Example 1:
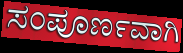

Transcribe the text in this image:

ಸಂಪೂರ್ಣವಾಗಿ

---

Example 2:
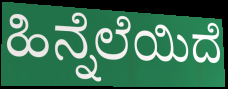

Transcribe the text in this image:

ಹಿನ್ನೆಲೆಯಿದೆ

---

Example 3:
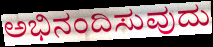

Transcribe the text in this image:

ಅಭಿನಂದಿಸುವುದು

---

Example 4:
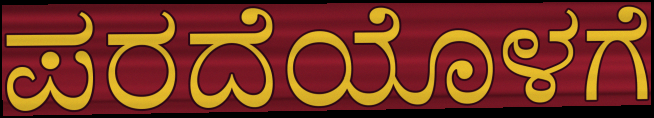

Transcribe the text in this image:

ಪರದೆಯೊಳಗೆ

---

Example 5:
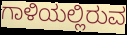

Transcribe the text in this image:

ಗಾಳಿಯಲ್ಲಿರುವ